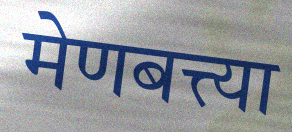
मेणबत्त्या